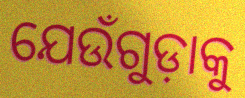
ଯେଉଁଗୁଡ଼ାକୁ